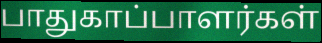
பாதுகாப்பாளர்கள்